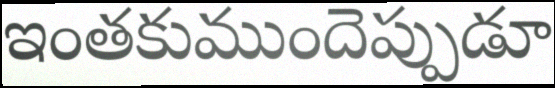
ఇంతకుముందెప్పుడూ